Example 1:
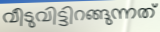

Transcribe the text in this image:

വീടുവിട്ടിറങ്ങുന്നത്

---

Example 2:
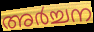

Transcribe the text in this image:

അർച്ചന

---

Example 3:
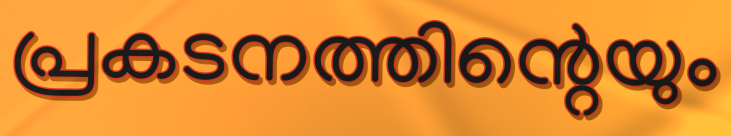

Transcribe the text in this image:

പ്രകടനത്തിന്റെയും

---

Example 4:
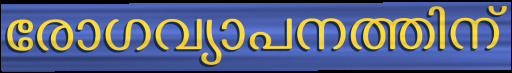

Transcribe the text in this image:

രോഗവ്യാപനത്തിന്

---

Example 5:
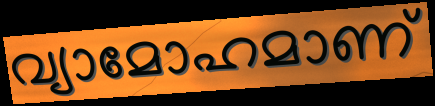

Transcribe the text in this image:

വ്യാമോഹമാണ്